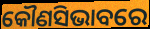
କୌଣସିଭାବରେ